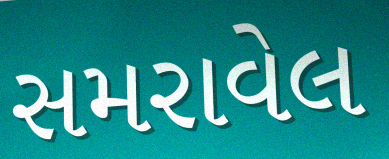
સમરાવેલ